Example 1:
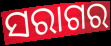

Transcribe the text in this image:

ସରାଗର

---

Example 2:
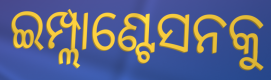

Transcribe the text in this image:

ଇମ୍ପ୍ଲାଣ୍ଟେସନକୁ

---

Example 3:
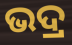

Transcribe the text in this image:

ଭଦ୍ର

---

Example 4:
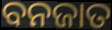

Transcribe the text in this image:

ବନଜାତ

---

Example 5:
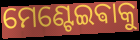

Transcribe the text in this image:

ମେଣ୍ଟେଇଵାକୁ